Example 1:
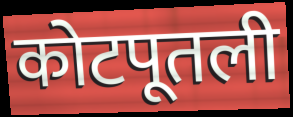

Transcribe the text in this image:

कोटपूतली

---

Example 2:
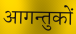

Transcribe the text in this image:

आगन्तुकों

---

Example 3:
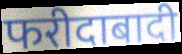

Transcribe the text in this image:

फरीदाबादी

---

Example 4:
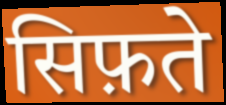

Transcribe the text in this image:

सिफ़ते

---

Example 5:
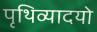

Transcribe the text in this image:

पृथिव्यादयो